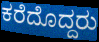
ಕರೆದೊದ್ದರು